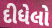
દીધેલો